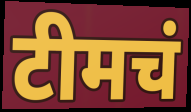
टीमचं